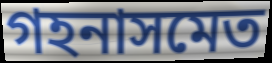
গহনাসমেত